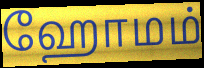
ஹோமம்